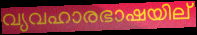
വ്യവഹാരഭാഷയില്